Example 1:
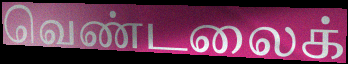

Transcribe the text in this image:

வெண்டலைக்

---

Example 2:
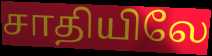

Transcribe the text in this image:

சாதியிலே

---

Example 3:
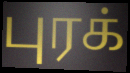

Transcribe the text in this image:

புரக்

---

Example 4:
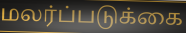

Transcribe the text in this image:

மலர்ப்படுக்கை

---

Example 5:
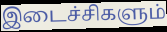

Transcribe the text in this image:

இடைச்சிகளும்